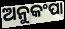
ଅନୁକଂପା